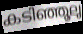
കടിഞ്ഞൂലു